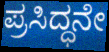
ಪ್ರಸಿದ್ಧನೇ